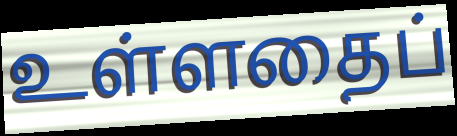
உள்ளதைப்